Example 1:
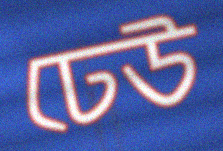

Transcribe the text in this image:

ঢেউ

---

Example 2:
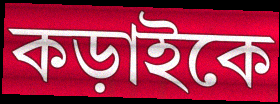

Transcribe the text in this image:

কড়াইকে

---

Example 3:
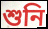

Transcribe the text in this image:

শুনি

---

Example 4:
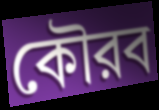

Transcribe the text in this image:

কৌরব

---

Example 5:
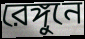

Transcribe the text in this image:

রেঙ্গুনে